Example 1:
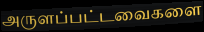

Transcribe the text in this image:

அருளப்பட்டவைகளை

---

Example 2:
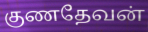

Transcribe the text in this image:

குணதேவன்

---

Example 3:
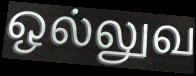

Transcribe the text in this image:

ஒல்லுவ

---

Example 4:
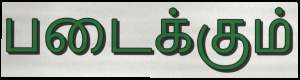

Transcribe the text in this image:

படைக்கும்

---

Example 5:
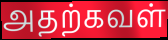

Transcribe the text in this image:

அதற்கவள்